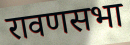
रावणसभा